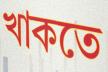
খাকতে